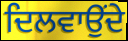
ਦਿਲਵਾਉਂਦੇ